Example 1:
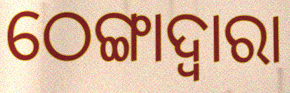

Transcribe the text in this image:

ଠେଙ୍ଗାଦ୍ୱାରା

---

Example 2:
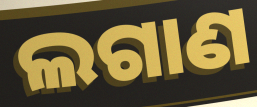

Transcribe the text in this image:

ଲଗାଣ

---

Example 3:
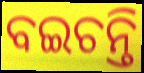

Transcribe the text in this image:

ବଇଚନ୍ତି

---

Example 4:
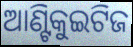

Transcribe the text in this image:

ଆଣ୍ଟିକୁଇଟିଜ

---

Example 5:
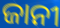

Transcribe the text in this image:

ଜାନୀ